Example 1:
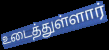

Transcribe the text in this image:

உடைத்துள்ளார்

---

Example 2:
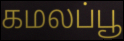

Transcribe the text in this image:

கமலப்பூ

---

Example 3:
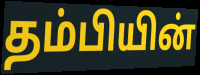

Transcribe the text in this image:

தம்பியின்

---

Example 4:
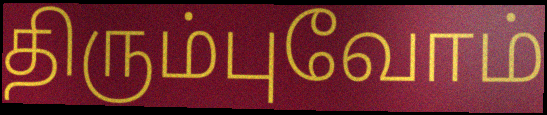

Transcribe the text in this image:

திரும்புவோம்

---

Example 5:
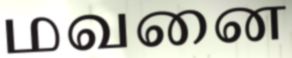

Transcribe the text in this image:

மவனை